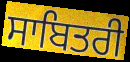
ਸਾਬਿਤਰੀ